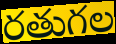
రతుగల